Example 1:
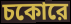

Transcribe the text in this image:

চকোরে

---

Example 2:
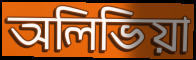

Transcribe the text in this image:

অলিভিয়া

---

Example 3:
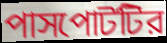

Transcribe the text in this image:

পাসপোর্টটির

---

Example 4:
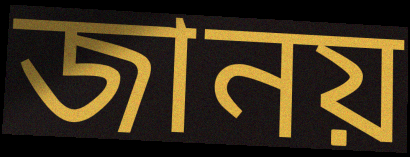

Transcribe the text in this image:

জানয়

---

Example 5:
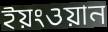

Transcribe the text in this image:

ইয়ংওয়ান